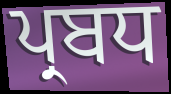
ਪ੍ਰਬਧ